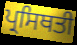
ਪ੍ਰਸਿਥਤੀ